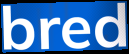
bred